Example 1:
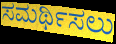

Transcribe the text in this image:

ಸಮರ್ಥಿಸಲು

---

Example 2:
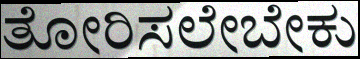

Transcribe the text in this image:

ತೋರಿಸಲೇಬೇಕು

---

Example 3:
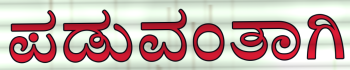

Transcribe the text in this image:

ಪಡುವಂತಾಗಿ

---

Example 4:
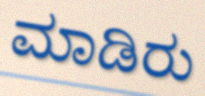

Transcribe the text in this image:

ಮಾಡಿರು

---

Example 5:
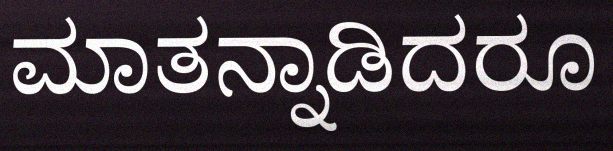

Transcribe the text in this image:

ಮಾತನ್ನಾಡಿದರೂ